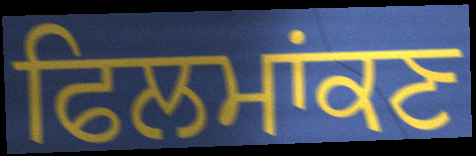
ਫਿਲਮਾਂਕਣ